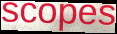
scopes